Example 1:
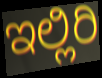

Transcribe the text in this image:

ಇಲ್ಲಿರಿ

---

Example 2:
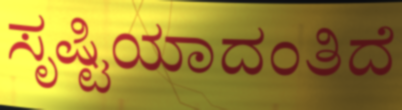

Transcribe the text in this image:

ಸೃಷ್ಟಿಯಾದಂತಿದೆ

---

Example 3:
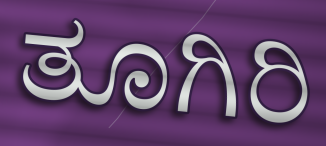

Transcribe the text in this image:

ತೂಗಿರಿ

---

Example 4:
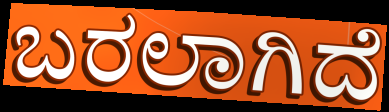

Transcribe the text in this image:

ಬರಲಾಗಿದೆ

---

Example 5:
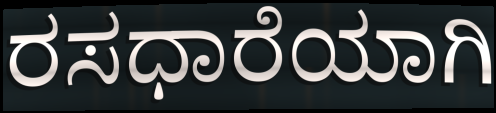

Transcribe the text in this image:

ರಸಧಾರೆಯಾಗಿ